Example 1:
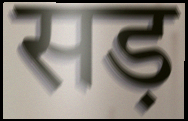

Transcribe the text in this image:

सड़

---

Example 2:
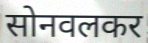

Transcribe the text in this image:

सोनवलकर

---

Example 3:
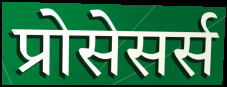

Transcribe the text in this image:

प्रोसेसर्स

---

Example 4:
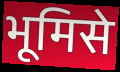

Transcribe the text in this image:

भूमिसे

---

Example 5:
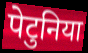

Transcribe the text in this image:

पेटुनिया